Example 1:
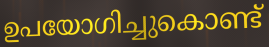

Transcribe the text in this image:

ഉപയോഗിച്ചുകൊണ്ട്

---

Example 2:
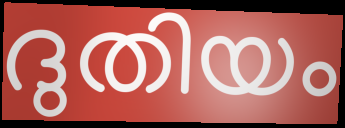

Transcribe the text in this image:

ദുതിയം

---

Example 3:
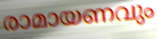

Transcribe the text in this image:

രാമായണവും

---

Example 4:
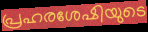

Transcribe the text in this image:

പ്രഹരശേഷിയുടെ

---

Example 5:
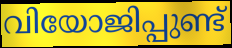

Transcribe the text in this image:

വിയോജിപ്പുണ്ട്